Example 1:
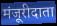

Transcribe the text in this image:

मंजूरीदाता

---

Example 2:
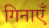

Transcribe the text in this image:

गिनाएँ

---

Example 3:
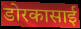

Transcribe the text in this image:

डोरकासाई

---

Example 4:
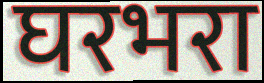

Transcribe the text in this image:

घरभरा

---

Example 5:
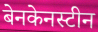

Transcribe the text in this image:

बेनकेनस्टीन